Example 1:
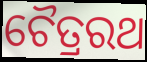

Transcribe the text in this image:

ଚୈତ୍ରରଥ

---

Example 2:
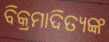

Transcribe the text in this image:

ବିକ୍ରମାଦିତ୍ୟଙ୍କ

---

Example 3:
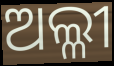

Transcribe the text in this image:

ଅଲ୍ଳୀ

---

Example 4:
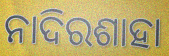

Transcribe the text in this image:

ନାଦିରଶାହା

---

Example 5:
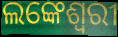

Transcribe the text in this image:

ଲଙ୍କେଶ୍ୱରୀ